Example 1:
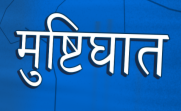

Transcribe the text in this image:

मुष्टिघात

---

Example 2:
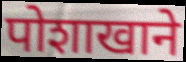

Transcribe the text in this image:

पोशाखाने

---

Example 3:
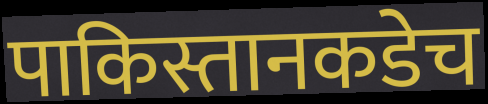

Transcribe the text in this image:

पाकिस्तानकडेच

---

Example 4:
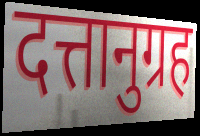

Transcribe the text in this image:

दत्तानुग्रह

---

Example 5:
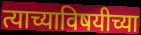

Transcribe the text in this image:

त्याच्याविषयीच्या